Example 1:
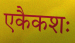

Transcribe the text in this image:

एकैकशः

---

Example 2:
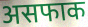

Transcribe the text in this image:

असफाक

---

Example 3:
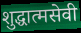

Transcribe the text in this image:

शुद्धात्मसेवी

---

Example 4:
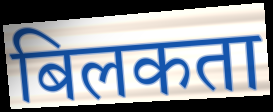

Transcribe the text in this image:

बिलकता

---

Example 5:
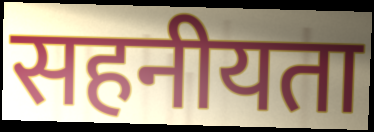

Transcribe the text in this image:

सहनीयता